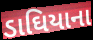
ડાઘિયાના